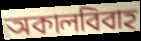
অকালবিবাহ